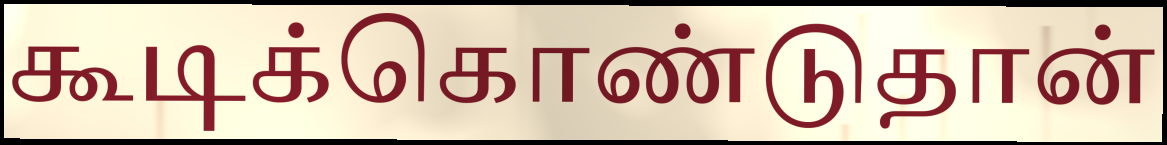
கூடிக்கொண்டுதான்